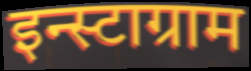
इन्स्टाग्राम